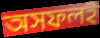
অসফলই